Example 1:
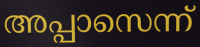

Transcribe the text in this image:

അപ്പാസെന്ന്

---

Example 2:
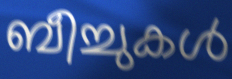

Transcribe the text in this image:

ബീച്ചുകൾ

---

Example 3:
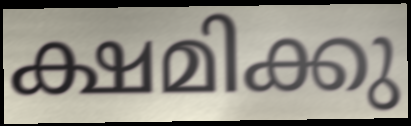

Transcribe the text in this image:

ക്ഷമിക്കു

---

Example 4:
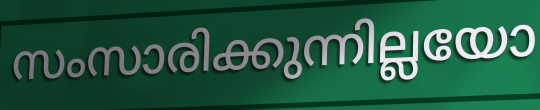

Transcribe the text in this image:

സംസാരിക്കുന്നില്ലയോ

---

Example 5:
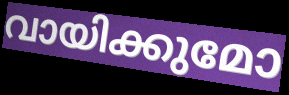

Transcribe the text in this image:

വായിക്കുമോ